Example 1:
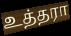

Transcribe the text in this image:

உத்தரா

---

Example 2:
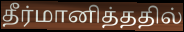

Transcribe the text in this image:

தீர்மானித்ததில்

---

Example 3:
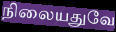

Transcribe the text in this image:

நிலையதுவே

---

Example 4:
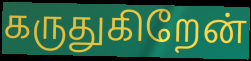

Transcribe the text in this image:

கருதுகிறேன்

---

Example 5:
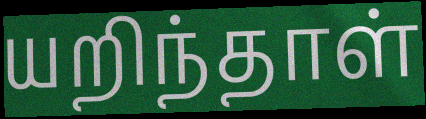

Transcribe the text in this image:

யறிந்தாள்